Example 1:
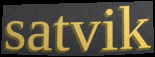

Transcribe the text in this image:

satvik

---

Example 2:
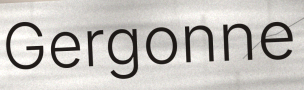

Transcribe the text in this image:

Gergonne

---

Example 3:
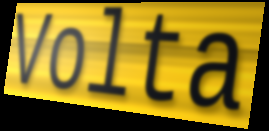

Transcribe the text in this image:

Volta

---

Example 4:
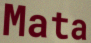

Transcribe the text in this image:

Mata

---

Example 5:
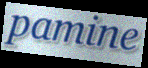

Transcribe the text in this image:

pamine